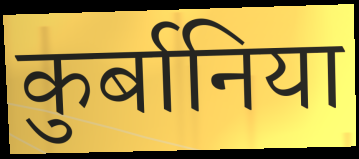
कुर्बानिया